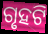
ଗୃହଟି